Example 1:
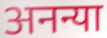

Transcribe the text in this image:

अनन्या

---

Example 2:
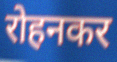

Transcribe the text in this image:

रोहनकर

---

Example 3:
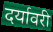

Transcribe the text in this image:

दर्यावरी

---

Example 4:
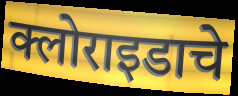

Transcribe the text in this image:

क्लोराइडाचे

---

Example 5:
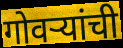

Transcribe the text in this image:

गोवऱ्यांची